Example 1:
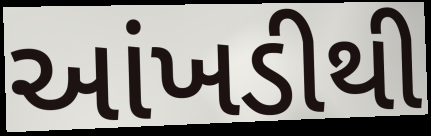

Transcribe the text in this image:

આંખડીથી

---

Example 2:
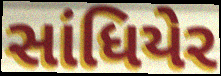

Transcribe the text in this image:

સાંધિયેર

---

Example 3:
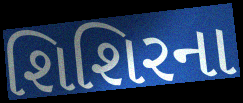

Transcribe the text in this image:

શિશિરના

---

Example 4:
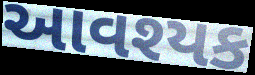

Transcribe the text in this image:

આવશ્યક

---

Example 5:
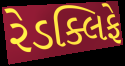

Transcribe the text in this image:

રેડક્લિફે